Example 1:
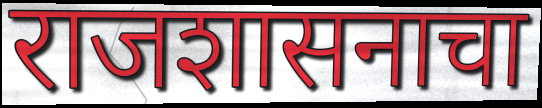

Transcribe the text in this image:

राजशासनाचा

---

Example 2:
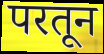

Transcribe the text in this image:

परतून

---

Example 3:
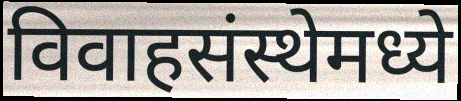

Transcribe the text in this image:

विवाहसंस्थेमध्ये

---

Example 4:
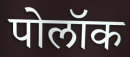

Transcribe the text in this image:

पोलॉक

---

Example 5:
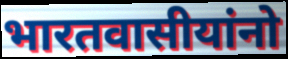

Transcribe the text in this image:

भारतवासीयांनो